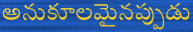
అనుకూలమైనప్పుడు